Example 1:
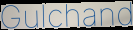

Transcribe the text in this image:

Gulchand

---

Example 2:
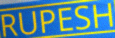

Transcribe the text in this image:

RUPESH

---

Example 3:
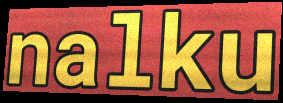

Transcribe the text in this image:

nalku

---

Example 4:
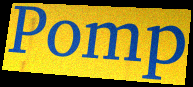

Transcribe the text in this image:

Pomp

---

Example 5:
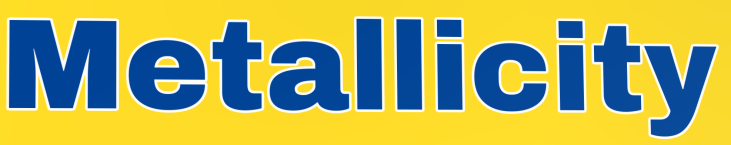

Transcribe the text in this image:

Metallicity